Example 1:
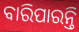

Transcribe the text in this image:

ବାରିପାରନ୍ତି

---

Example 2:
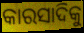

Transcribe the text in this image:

କାରସାଦିକୁ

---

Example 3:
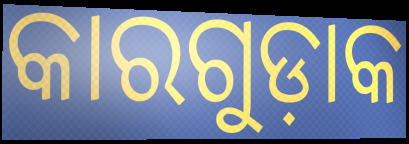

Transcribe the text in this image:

କାରଗୁଡ଼ାକ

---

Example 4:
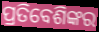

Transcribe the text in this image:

ପ୍ରତିବେଶିଙ୍କର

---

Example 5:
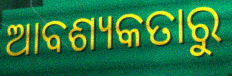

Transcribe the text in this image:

ଆବଶ୍ୟକତାରୁ